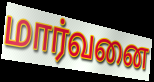
மார்வனை